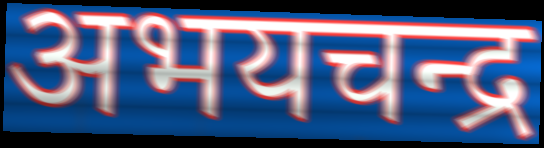
अभयचन्द्र